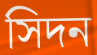
সিদন